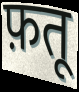
फ़तू